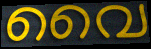
വൈ